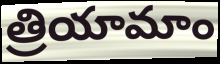
త్రియామాం